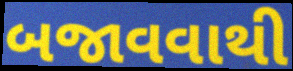
બજાવવાથી